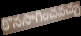
కొనసాగించవచ్చు